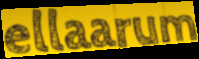
ellaarum